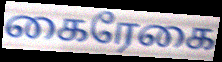
கைரேகை